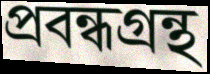
প্ৰবন্ধগ্ৰন্থ